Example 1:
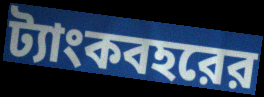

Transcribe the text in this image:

ট্যাংকবহরের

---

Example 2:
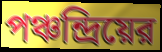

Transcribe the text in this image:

পঞ্চন্দ্রিয়ের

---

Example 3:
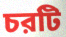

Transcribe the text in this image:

চরটি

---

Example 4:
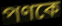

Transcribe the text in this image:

পণকে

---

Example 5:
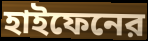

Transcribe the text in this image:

হাইফেনের